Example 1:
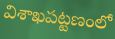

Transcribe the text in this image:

విశాఖపట్టణంలో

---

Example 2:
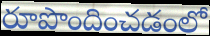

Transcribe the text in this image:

రూపొందించడంలో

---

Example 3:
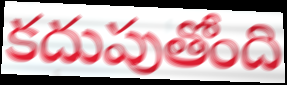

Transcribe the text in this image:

కదుపుతోంది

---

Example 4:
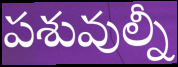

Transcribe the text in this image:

పశువుల్నీ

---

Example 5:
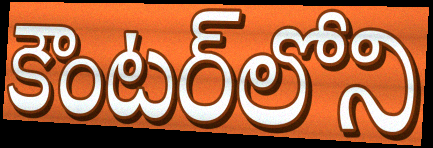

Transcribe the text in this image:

కౌంటర్‌లోని